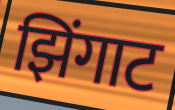
झिंगाट